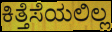
ಕಿತ್ತೆಸೆಯಲಿಲ್ಲ